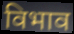
विभाव